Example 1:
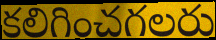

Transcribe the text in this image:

కలిగించగలరు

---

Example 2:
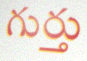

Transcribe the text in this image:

గుర్తు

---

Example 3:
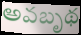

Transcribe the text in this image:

అవబృథ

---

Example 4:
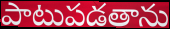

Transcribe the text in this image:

పాటుపడతాను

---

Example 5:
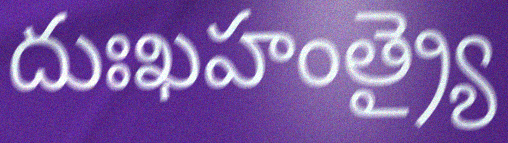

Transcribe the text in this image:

దుఃఖహంత్ర్యై